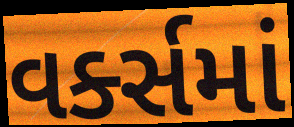
વર્ક્સમાં